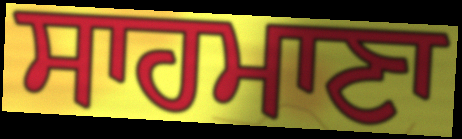
ਸਾਹਮਾਣਾ